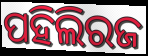
ପହିଲିରଜ